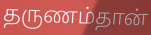
தருணம்தான்